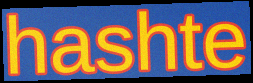
hashte